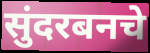
सुंदरबनचे